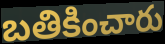
బతికించారు